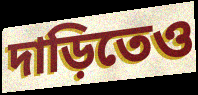
দাড়িতেও